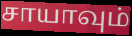
சாயாவும்